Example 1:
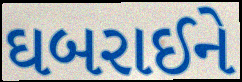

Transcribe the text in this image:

ઘબરાઈને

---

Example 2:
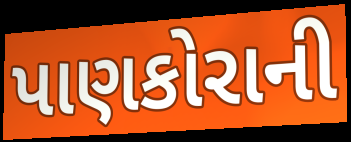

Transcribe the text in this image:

પાણકોરાની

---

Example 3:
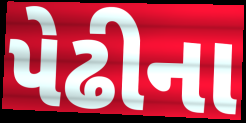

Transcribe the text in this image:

પેઢીના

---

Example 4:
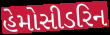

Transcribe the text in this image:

હેમોસીડરિન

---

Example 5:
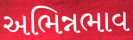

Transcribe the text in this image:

અભિન્નભાવ